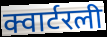
क्वार्टरली